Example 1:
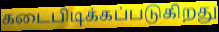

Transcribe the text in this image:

கடைபிடிக்கப்படுகிறது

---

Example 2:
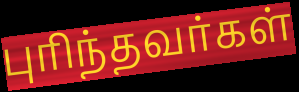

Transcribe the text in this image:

புரிந்தவர்கள்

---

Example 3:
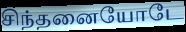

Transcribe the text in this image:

சிந்தனையோடே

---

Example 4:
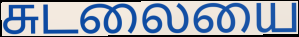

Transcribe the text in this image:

சுடலையை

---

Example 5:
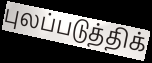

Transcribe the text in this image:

புலப்படுத்திக்